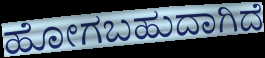
ಹೋಗಬಹುದಾಗಿದೆ